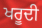
ਖਰੂਦੀ